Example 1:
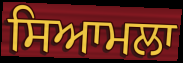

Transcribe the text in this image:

ਸਿਆਮਲਾ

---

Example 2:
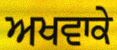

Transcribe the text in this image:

ਅਖਵਾਕੇ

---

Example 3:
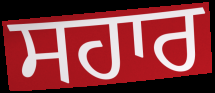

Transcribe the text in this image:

ਸਹਾਰ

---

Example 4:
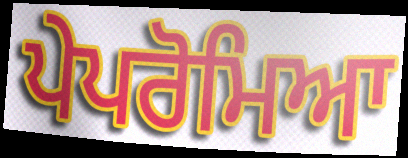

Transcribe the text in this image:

ਪੇਪਰੋਮਿਆ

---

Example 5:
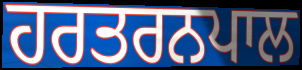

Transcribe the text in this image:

ਹਰਤਰਨਪਾਲ